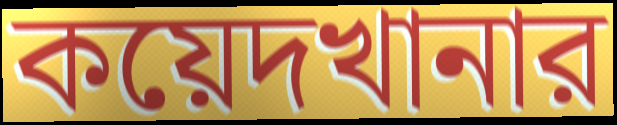
কয়েদখানার